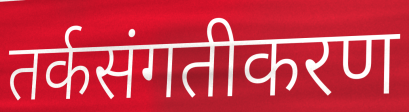
तर्कसंगतीकरण